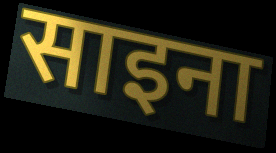
साइना